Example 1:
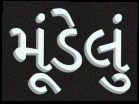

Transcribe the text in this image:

મૂંડેલું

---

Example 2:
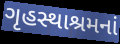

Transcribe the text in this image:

ગૃહસ્થાશ્રમનાં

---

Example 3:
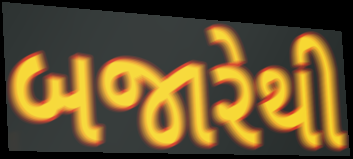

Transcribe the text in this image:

બજારેથી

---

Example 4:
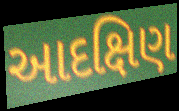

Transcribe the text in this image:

આદક્ષિણ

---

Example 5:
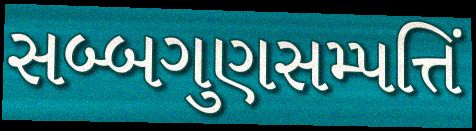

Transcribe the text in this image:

સબ્બગુણસમ્પત્તિં